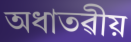
অধাতৱীয়